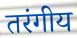
तरंगीय